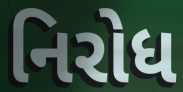
નિરોધ